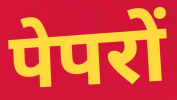
पेपरों